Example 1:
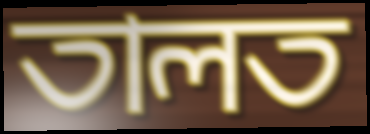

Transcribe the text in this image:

তালত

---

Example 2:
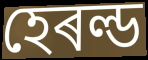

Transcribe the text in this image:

হেৰল্ড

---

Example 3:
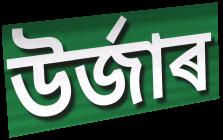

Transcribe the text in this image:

উৰ্জাৰ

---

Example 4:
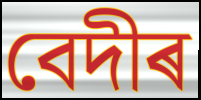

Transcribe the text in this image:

বেদীৰ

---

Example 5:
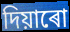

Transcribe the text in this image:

দিয়াৰো